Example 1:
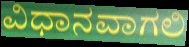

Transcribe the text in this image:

ವಿಧಾನವಾಗಲಿ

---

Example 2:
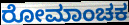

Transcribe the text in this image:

ರೋಮಾಂಚಕ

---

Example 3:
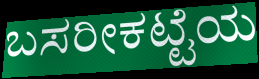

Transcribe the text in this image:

ಬಸರೀಕಟ್ಟೆಯ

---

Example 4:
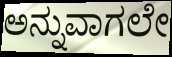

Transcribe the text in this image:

ಅನ್ನುವಾಗಲೇ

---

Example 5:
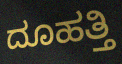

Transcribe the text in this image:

ದೂಹತ್ತಿ